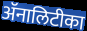
ॲनालिटीका